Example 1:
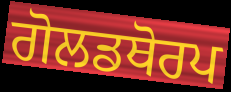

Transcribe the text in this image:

ਗੋਲਡਥੋਰਪ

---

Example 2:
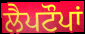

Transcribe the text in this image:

ਲੈਪਟੌਪਾਂ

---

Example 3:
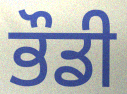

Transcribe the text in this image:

ਭੌਡੀ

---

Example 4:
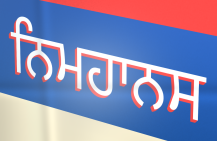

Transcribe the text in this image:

ਨਿਮਹਾਨਸ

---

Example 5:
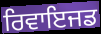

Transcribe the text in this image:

ਰਿਵਾਇਜਡ